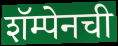
शॅम्पेनची